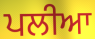
ਪਲੀਆ